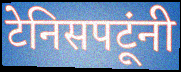
टेनिसपटूंनी